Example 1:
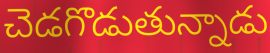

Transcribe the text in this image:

చెడగొడుతున్నాడు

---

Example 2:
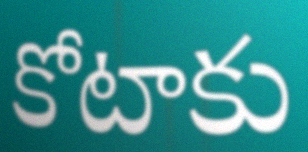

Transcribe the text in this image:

కోటాకు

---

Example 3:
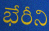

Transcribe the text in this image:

భేరీని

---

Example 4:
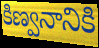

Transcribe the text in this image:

కిణ్వనానికి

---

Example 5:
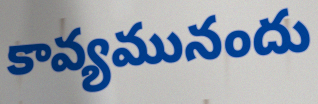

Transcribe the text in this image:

కావ్యమునందు